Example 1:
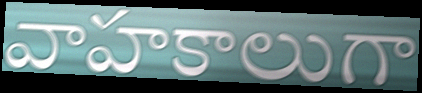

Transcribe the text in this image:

వాహకాలుగా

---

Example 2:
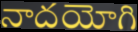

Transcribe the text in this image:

నాదయోగి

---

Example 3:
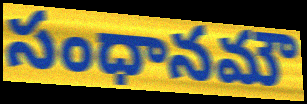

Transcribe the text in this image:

సంధానమౌ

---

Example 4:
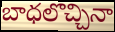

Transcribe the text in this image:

బాధలొచ్చినా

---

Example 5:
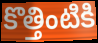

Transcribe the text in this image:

కొత్తింటికి